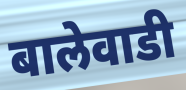
बालेवाडी